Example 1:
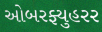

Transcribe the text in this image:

ઓબરફ્યુહરર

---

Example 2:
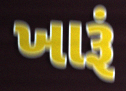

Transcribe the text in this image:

ખારૂં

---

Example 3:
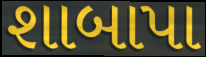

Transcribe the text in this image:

શાબાપા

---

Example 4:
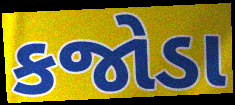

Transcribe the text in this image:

કજોડા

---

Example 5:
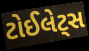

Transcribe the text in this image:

ટોઈલેટ્સ